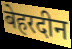
बेहरदीन